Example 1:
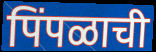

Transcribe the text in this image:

पिंपळाची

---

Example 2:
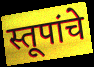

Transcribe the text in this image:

स्तूपांचे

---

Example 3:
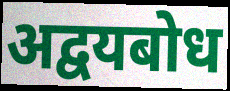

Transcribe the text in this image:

अद्वयबोध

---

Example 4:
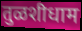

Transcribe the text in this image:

तुळशीधाम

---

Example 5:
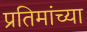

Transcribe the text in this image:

प्रतिमांच्या